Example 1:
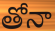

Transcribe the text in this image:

తోనా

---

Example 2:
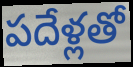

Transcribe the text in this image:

పదేళ్లతో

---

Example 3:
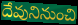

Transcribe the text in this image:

దేవునినుంచి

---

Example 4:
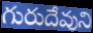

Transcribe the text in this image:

గురుదేవుని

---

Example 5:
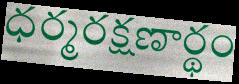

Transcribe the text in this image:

ధర్మరక్షణార్థం